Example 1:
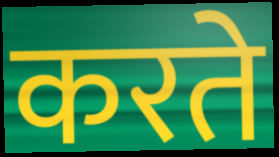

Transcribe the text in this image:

करते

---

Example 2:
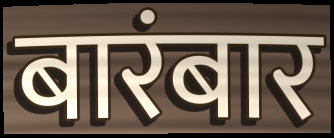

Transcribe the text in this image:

बारंबार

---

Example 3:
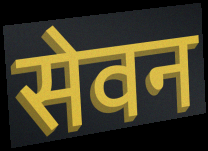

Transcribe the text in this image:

सेवन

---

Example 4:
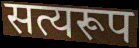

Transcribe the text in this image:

सत्यरूप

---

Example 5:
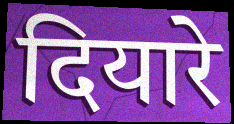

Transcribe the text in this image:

दियारे